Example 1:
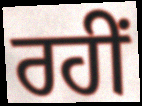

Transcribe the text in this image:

ਰਹੀਂ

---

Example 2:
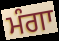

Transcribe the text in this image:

ਮੰਗਾ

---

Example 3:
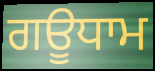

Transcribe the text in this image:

ਗਊਧਾਮ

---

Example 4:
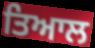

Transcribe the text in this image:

ਤਿਆਲ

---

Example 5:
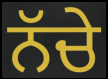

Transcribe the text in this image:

ਨੱਚੇ